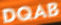
DQAB